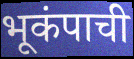
भूकंपाची